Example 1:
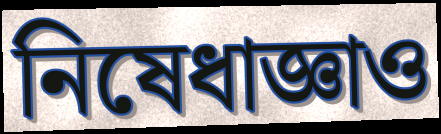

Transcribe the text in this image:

নিষেধাজ্ঞাও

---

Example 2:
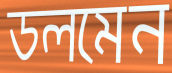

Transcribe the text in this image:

ডলমেন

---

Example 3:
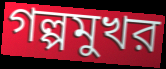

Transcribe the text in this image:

গল্পমুখর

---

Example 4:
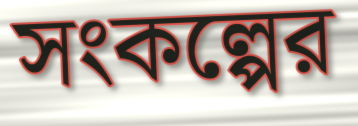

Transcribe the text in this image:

সংকল্পের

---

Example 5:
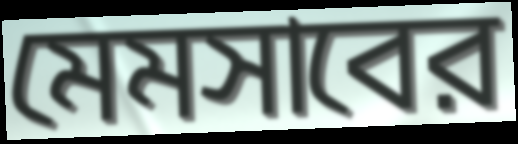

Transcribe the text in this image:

মেমসাবের